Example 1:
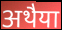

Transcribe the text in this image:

अथैया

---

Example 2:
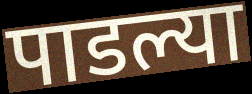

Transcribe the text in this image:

पाडल्या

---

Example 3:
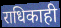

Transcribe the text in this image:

राधिकाही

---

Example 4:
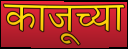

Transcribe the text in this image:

काजूच्या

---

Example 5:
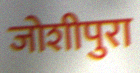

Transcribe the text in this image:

जोशीपुरा